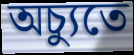
অচ্যুতে